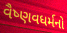
વૈષ્ણવધર્મનો